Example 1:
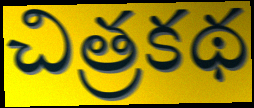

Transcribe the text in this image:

చిత్రకథ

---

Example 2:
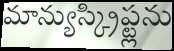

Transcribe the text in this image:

మాన్యుస్క్రిప్ట్లను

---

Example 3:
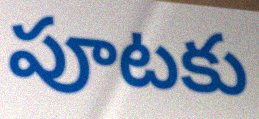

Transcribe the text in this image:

పూటకు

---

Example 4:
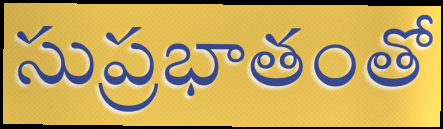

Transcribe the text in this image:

సుప్రభాతంతో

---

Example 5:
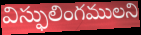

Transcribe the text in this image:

విస్ఫులింగములని